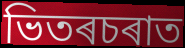
ভিতৰচৰাত